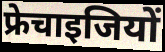
फ्रेचाइजियों